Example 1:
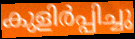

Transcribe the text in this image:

കുളിർപ്പിച്ചു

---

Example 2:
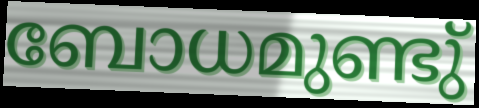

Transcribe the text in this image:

ബോധമുണ്ടു്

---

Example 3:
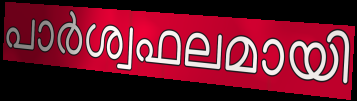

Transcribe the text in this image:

പാർശ്വഫലമായി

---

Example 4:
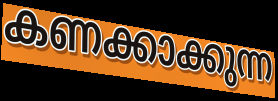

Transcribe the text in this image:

കണക്കാക്കുന്ന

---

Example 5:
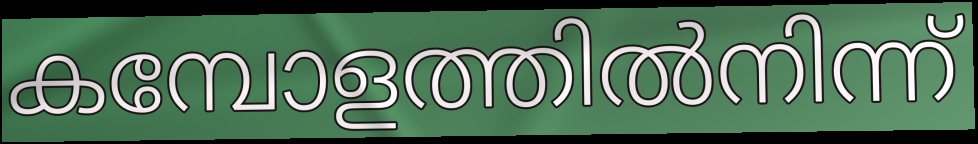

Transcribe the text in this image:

കമ്പോളത്തിൽനിന്ന്